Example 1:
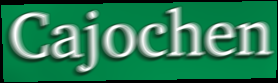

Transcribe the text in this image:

Cajochen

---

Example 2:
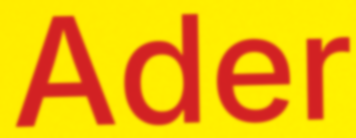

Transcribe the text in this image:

Ader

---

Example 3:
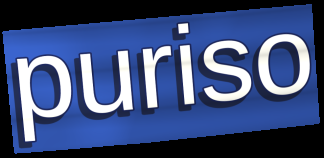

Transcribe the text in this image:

puriso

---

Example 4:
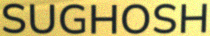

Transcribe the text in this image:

SUGHOSH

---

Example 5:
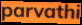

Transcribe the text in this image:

parvathi